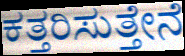
ಕತ್ತರಿಸುತ್ತೇನೆ